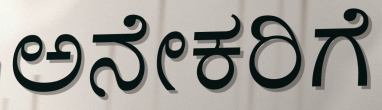
ಅನೇಕರಿಗೆ